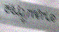
ಕಟ್ಟುಗಳಿಗೂ